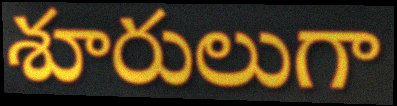
శూరులుగా